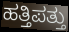
ಹತ್ತಿಪತ್ತು